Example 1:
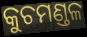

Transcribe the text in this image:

କୁଚମଣ୍ଡଳ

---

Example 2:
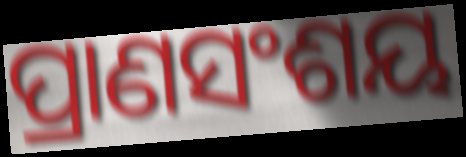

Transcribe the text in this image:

ପ୍ରାଣସଂଶୟ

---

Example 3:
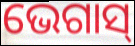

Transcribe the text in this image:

ଭେଗାସ୍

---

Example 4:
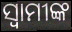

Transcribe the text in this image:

ସ୍ୱାମୀଙ୍କ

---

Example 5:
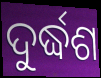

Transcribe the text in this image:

ଦୁର୍ଦ୍ଧଶ